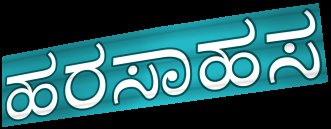
ಹರಸಾಹಸ